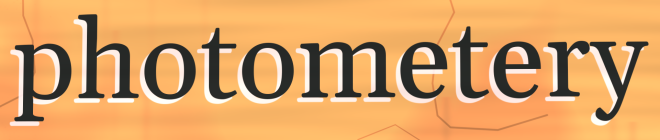
photometery